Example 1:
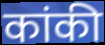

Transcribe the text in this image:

कांकी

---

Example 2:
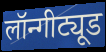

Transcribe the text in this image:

लॉन्गीट्यूड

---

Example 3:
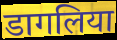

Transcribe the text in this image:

डागलिया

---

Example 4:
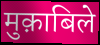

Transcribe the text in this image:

मुक़ाबिले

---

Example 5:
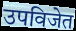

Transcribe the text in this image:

उपविजेत